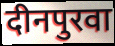
दीनपुरवा